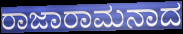
ರಾಜಾರಾಮನಾದ